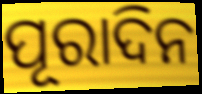
ପୂରାଦିନ